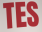
TES